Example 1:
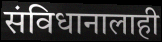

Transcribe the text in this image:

संविधानालाही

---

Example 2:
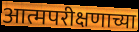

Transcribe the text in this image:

आत्मपरीक्षणाच्या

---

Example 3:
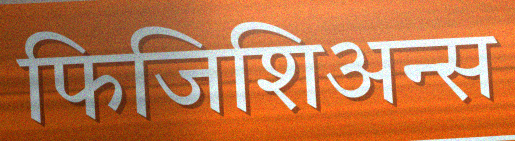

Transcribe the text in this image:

फिजिशिअन्स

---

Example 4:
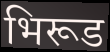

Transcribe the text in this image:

भिरूड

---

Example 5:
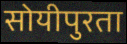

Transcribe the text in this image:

सोयीपुरता